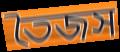
তৈজস